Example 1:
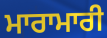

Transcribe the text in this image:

ਮਾਰਾਮਾਰੀ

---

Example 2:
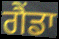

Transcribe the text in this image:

ਗੈਂਡਾ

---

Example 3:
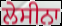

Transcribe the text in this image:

ਲੇਸੀਨਾ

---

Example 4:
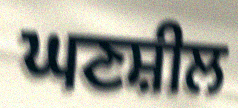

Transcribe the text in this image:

ਘਣਸ਼ੀਲ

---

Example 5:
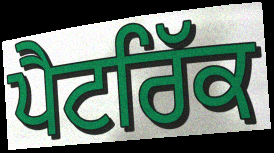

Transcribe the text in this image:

ਪੈਟਰਿੱਕ